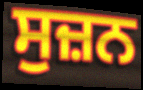
ਸੁਜ਼ਨ